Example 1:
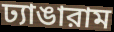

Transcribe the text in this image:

ঢ্যাঙারাম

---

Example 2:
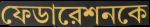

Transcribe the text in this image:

ফেডারেশনকে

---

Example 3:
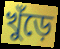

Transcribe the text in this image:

খুঁড়ে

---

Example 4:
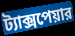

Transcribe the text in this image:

ট্যাক্সপেয়ার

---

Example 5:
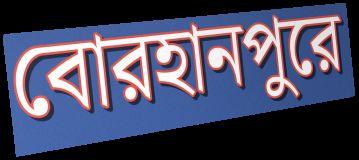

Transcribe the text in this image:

বোরহানপুরে